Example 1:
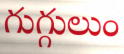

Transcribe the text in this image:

గుగ్గులుం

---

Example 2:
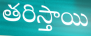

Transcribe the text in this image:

తరిస్తాయి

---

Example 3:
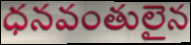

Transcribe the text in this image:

ధనవంతులైన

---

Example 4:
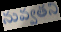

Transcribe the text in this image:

నువ్వతని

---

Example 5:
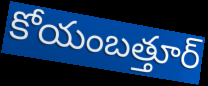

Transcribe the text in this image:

కోయంబత్తూర్